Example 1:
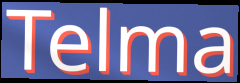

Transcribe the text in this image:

Telma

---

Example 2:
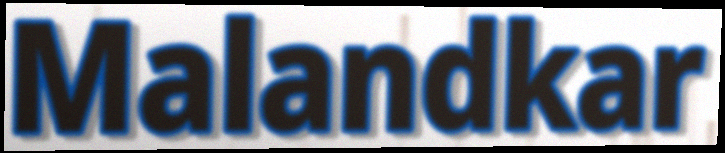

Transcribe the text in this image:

Malandkar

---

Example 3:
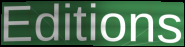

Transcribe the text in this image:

Editions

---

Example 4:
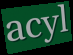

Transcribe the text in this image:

acyl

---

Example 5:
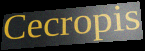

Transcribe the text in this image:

Cecropis